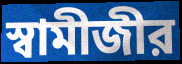
স্বামীজীর